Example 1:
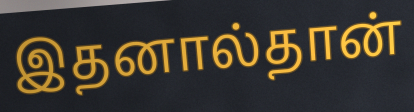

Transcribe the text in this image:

இதனால்தான்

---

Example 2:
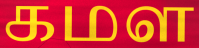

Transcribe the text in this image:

கமள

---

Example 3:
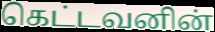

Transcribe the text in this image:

கெட்டவனின்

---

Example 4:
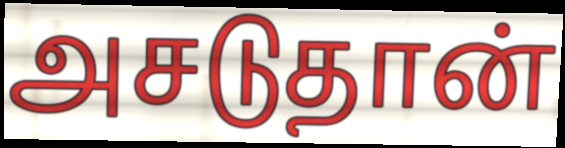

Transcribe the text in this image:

அசடுதான்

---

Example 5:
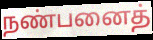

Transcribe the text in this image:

நண்பனைத்